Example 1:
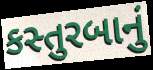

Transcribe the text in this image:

કસ્તુરબાનું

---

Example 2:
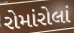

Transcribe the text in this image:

રોમાંરોલાં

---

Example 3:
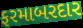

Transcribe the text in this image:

ફરમાબરદાર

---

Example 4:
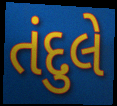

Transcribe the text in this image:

તંદુલે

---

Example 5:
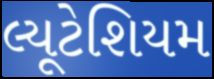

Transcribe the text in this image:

લ્યૂટેશિયમ